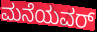
ಮನೆಯವರ್